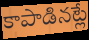
కాపాడినట్లే